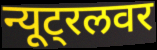
न्यूट्रलवर